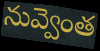
నువ్వెంత